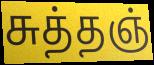
சுத்தஞ்